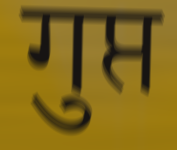
गुप्त